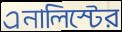
এনালিস্টের